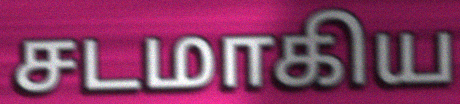
சடமாகிய